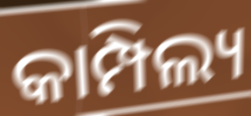
କାମ୍ପିଲ୍ୟ